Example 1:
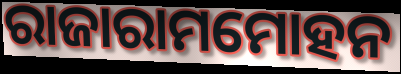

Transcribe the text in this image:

ରାଜାରାମମୋହନ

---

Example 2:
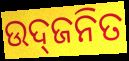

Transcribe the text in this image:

ଉଦ୍‌ଜନିତ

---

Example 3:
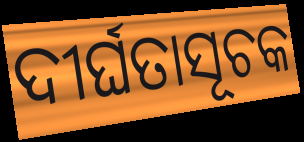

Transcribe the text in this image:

ଦୀର୍ଘତାସୂଚକ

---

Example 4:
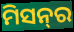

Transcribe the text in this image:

ମିସନ୍‌ର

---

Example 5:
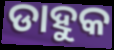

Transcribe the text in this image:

ଡାହୁକ